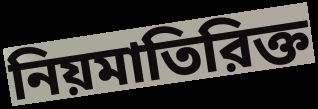
নিয়মাতিরিক্ত